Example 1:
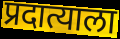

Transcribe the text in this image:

प्रदात्याला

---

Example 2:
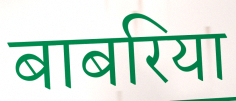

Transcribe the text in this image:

बाबरिया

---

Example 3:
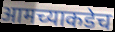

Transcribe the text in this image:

आमच्याकडेच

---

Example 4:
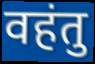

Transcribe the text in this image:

वहंतु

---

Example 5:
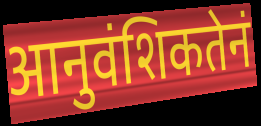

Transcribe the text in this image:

आनुवंशिकतेनं